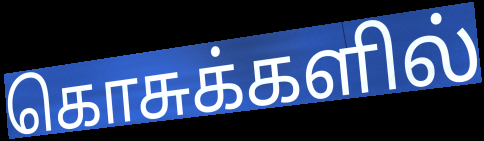
கொசுக்களில்